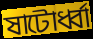
ষাটোর্ধ্বা